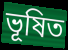
ভূষিত